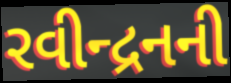
રવીન્દ્રનની